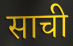
साची